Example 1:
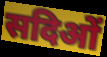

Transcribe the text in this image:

सदिओं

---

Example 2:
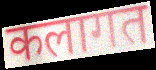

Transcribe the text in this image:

कलागत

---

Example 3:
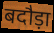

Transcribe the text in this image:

बदौड़ा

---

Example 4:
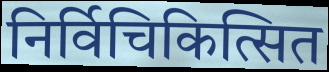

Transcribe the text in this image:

निर्विचिकित्सित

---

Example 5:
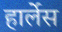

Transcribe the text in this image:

हार्लेस